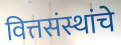
वित्तसंस्थांचे